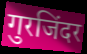
गुरजिंदर